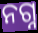
ନଗ୍ନ